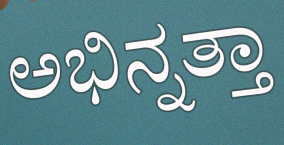
ಅಭಿನ್ನತ್ತಾ